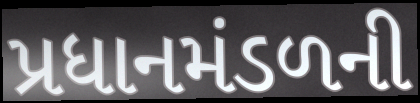
પ્રધાનમંડળની